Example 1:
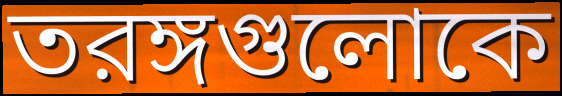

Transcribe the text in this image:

তরঙ্গগুলোকে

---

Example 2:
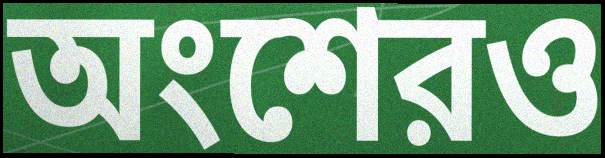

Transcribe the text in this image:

অংশেরও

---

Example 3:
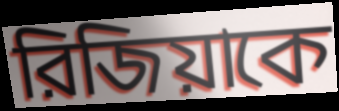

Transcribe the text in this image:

রিজিয়াকে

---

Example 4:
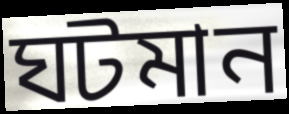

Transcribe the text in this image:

ঘটমান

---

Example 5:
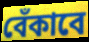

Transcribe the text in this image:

বেঁকাবে